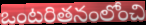
ఒంటరితనంలోంచి